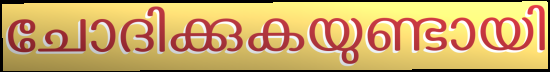
ചോദിക്കുകയുണ്ടായി